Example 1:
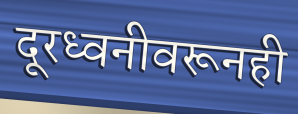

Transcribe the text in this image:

दूरध्वनीवरूनही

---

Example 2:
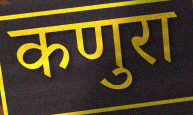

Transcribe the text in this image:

कणुरा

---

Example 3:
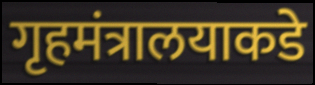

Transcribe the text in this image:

गृहमंत्रालयाकडे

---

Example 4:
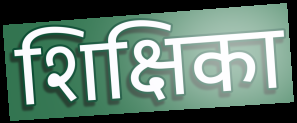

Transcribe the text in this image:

शिक्षिका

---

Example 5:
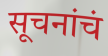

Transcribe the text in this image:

सूचनांचं